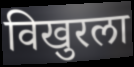
विखुरला